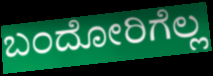
ಬಂದೋರಿಗೆಲ್ಲ